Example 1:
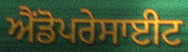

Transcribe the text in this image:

ਐਂਡੋਪਰੇਸਾਈਟ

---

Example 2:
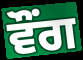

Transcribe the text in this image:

ਵੌਂਗ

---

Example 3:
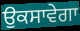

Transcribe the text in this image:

ਉਕਸਾਵੇਗਾ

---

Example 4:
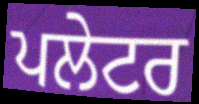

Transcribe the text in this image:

ਪਲੇਟਰ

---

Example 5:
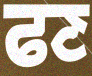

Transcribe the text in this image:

ਫਣ